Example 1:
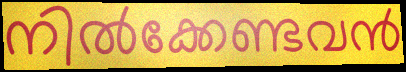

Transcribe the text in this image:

നിൽക്കേണ്ടവൻ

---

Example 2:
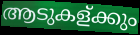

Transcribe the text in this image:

ആടുകള്ക്കും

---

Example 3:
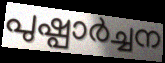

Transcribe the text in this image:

പുഷ്പാർച്ചന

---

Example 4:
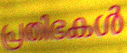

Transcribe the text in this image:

പ്രതിഭകൾ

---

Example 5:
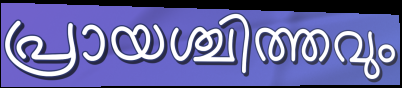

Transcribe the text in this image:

പ്രായശ്ചിത്തവും